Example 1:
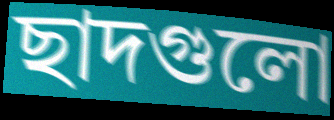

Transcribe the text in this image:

ছাদগুলো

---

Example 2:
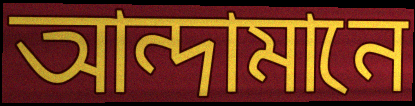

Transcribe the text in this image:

আন্দামানে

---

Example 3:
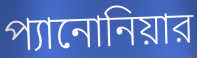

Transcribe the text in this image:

প্যানোনিয়ার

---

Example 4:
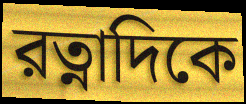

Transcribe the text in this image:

রত্নাদিকে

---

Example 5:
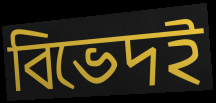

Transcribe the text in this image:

বিভেদই